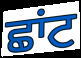
ਛਾਂਟ